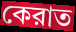
কেরাত